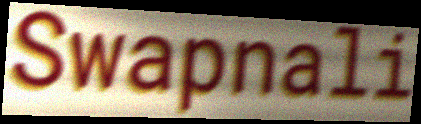
Swapnali